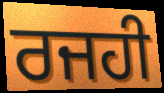
ਰਜਹੀ